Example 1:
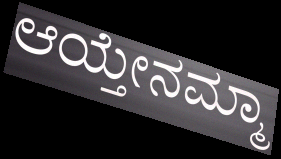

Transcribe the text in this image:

ಆಯ್ತೇನಮ್ಮಾ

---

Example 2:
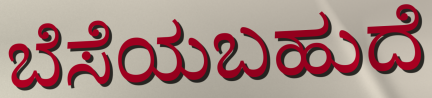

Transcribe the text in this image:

ಬೆಸೆಯಬಹುದೆ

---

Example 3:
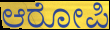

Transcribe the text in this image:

ಆರೋಪಿ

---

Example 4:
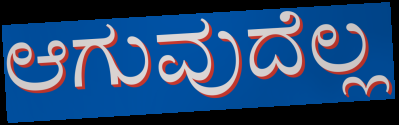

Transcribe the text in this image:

ಆಗುವುದೆಲ್ಲ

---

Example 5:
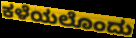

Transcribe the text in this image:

ಕಳೆಯಲೊಂದು